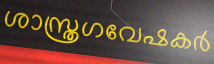
ശാസ്ത്രഗവേഷകർ